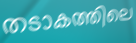
തടാകത്തിലെ